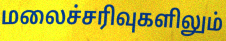
மலைச்சரிவுகளிலும்